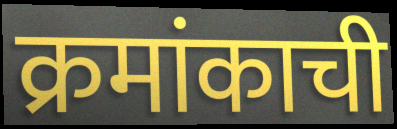
क्रमांकाची